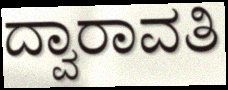
ದ್ವಾರಾವತಿ